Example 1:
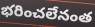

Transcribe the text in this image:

భరించలేనంత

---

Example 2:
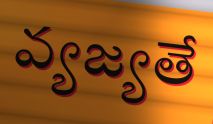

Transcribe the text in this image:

వ్యజ్యతే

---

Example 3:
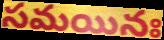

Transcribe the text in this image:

సమయినః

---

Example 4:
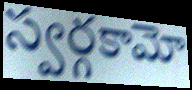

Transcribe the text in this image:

స్వర్గకామో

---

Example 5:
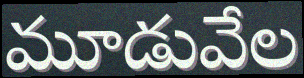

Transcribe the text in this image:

మూడువేల